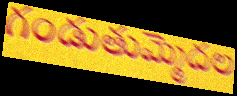
గండుతుమ్మెదల